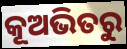
କୂଅଭିତରୁ